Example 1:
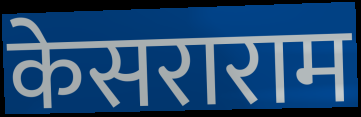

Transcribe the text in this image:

केसराराम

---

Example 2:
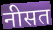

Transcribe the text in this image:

नीसत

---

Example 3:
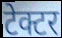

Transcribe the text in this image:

टेक्टर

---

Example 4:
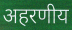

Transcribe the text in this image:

अहरणीय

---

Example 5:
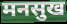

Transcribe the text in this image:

मनसुख